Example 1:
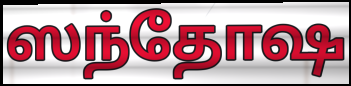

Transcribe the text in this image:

ஸந்தோஷ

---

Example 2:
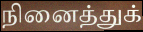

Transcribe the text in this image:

நினைத்துக்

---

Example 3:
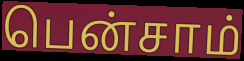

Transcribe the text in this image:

பென்சாம்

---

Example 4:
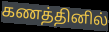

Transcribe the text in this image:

கணத்தினில்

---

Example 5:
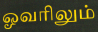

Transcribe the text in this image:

ஓவரிலும்